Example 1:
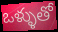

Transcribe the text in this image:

ఒళ్ళుతో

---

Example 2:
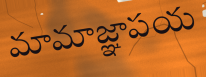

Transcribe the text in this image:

మామాజ్ఞాపయ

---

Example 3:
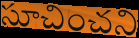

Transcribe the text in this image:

సూచించని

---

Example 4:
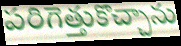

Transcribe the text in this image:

పరిగెత్తుకొచ్చాను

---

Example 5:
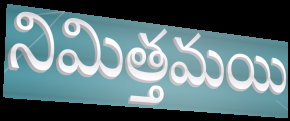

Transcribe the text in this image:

నిమిత్తమయి